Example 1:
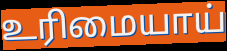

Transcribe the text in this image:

உரிமையாய்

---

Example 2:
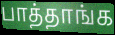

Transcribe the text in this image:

பாத்தாங்க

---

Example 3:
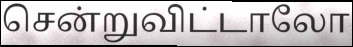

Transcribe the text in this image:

சென்றுவிட்டாலோ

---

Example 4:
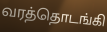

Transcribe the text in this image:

வரத்தொடங்கி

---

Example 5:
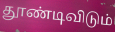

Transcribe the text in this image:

தூண்டிவிடும்